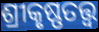
ଶ୍ରୀକୃଷ୍ଣତତ୍ତ୍ଵ